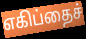
எகிப்தைச்